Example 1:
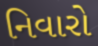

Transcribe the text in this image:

નિવારો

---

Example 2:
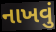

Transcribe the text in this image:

નાખવું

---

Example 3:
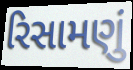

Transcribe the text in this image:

રિસામણું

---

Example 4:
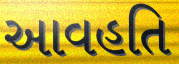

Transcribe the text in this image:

આવહતિ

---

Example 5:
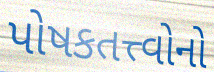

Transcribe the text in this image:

પોષકતત્ત્વોનો